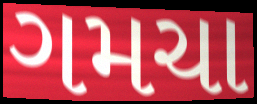
ગમચા